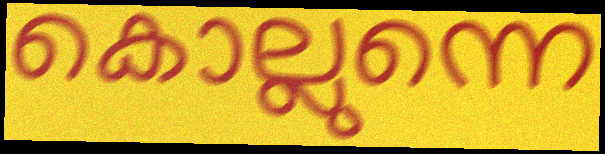
കൊല്ലുന്നെ